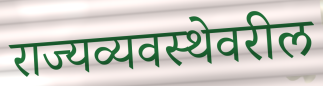
राज्यव्यवस्थेवरील